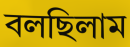
বলছিলাম